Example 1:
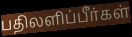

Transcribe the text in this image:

பதிலளிப்பீர்கள்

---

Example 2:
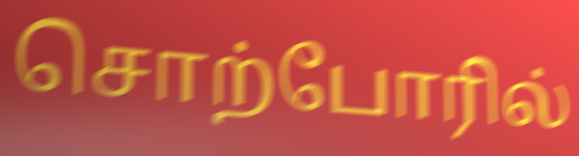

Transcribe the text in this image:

சொற்போரில்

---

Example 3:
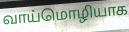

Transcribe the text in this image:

வாய்மொழியாக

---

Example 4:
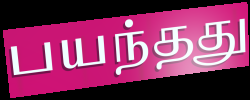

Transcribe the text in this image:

பயந்தது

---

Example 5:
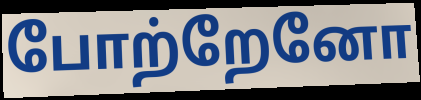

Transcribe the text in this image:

போற்றேனோ